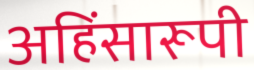
अहिंसारूपी